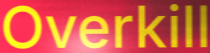
Overkill